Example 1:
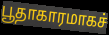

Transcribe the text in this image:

பூதாகாரமாகச்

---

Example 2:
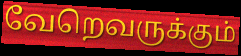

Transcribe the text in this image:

வேறெவருக்கும்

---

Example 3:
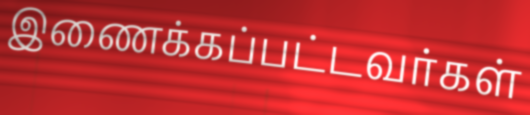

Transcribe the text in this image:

இணைக்கப்பட்டவர்கள்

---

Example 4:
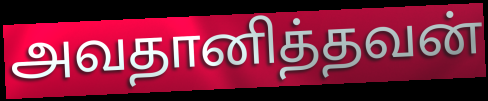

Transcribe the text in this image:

அவதானித்தவன்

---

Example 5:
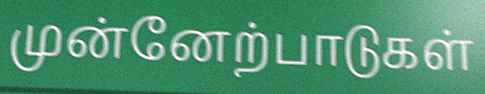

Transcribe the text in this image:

முன்னேற்பாடுகள்